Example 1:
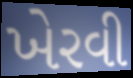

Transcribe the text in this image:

ખેરવી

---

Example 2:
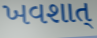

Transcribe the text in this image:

ખવશાત્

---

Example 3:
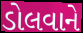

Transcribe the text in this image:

ડોલવાને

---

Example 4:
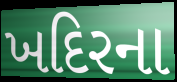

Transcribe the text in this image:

ખદિરના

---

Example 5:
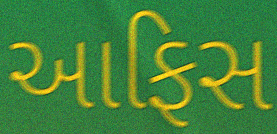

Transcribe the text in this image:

આફિસ